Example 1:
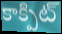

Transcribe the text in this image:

కాక్పిట్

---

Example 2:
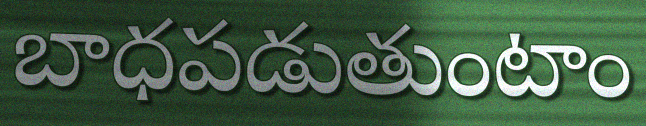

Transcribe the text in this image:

బాధపడుతుంటాం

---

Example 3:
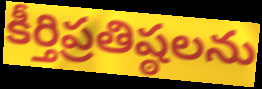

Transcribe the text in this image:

కీర్తిప్రతిష్ఠలను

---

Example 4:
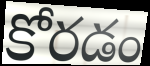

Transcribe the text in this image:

కోరడం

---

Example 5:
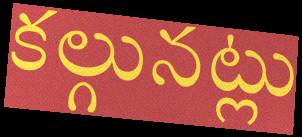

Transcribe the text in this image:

కల్గునట్లు